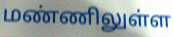
மண்ணிலுள்ள